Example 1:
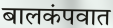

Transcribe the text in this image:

बालकंपवात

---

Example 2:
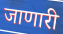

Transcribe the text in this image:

जाणारी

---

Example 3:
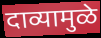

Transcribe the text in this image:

दाव्यामुळे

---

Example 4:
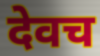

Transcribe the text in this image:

देवच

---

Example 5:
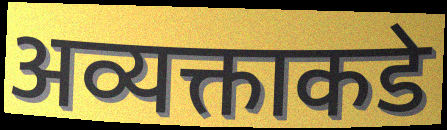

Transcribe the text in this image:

अव्यक्ताकडे